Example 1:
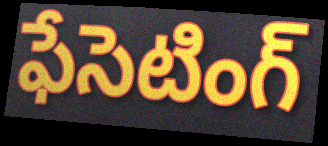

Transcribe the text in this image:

ఫేసెటింగ్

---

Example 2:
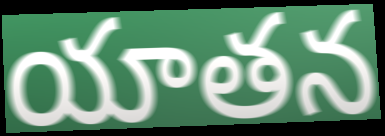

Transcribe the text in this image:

యాతన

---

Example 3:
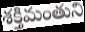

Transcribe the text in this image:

శక్తిమంతుని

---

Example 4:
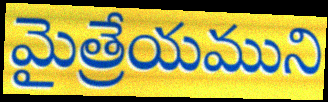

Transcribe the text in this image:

మైత్రేయముని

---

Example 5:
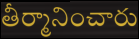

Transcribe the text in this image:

తీర్మానించారు